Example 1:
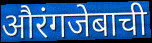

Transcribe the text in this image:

औरंगजेबाची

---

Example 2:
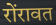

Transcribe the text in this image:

रोंरावत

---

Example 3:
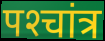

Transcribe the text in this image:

पश्चांत्र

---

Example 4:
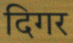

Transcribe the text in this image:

दिगर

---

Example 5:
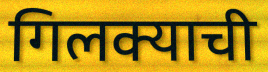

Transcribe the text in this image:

गिलक्याची